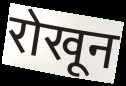
रोखून